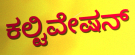
ಕಲ್ಟಿವೇಷನ್